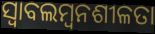
ସ୍ୱାବଲମ୍ବନଶୀଳତା